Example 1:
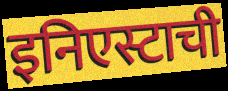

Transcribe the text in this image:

इनिएस्टाची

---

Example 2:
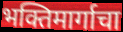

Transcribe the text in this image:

भक्तिमार्गाचा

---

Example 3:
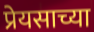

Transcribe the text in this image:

प्रेयसाच्या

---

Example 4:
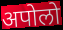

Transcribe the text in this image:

अपोलो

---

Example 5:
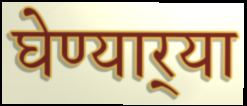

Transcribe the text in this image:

घेण्यार्या